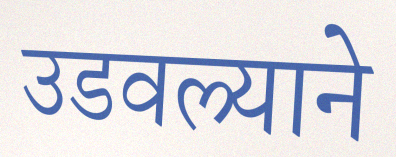
उडवल्याने